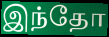
இந்தோ